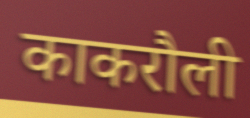
काकरौली